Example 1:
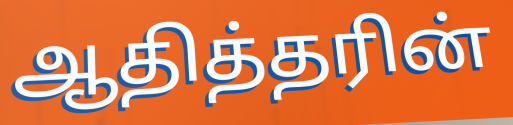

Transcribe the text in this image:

ஆதித்தரின்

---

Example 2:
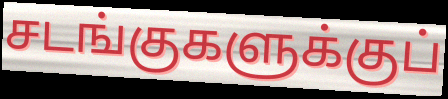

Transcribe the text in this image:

சடங்குகளுக்குப்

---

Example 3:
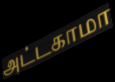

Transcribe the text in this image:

அட்டகாமா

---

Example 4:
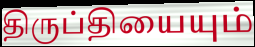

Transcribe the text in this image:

திருப்தியையும்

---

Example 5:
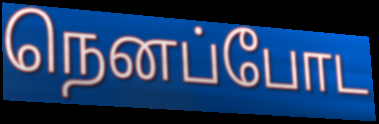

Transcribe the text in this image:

நெனப்போட